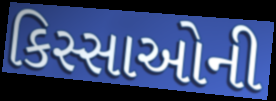
કિસ્સાઓની